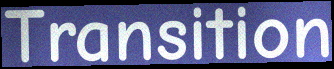
Transition